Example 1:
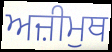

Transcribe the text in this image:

ਅਜ਼ੀਮੁਥ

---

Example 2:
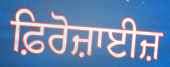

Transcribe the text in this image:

ਫ਼ਿਰੋਜ਼ਾਈਜ਼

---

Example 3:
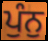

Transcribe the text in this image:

ਪੁੰਨੁ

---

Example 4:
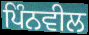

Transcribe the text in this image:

ਪਿੰਨਵੀਲ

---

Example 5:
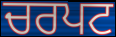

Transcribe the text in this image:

ਚਰਪਟ